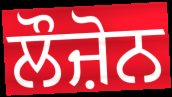
ਲੌਜ਼ੋਨ